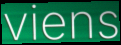
viens